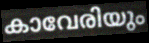
കാവേരിയും